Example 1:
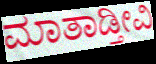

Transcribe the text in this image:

ಮಾತಾಡ್ತೀವಿ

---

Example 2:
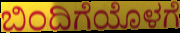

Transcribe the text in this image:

ಬಿಂದಿಗೆಯೊಳಗೆ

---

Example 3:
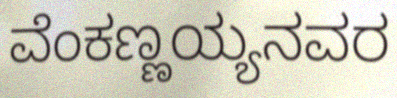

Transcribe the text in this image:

ವೆಂಕಣ್ಣಯ್ಯನವರ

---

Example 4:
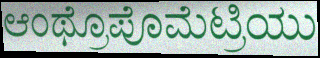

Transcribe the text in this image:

ಆಂಥ್ರೊಪೊಮೆಟ್ರಿಯು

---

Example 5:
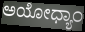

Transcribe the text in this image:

ಅಯೋಧ್ಯಾಂ